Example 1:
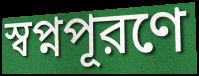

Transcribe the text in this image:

স্বপ্নপূরণে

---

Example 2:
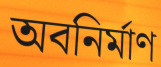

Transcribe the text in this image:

অবনির্মাণ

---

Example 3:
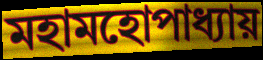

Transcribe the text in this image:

মহামহোপাধ্যায়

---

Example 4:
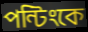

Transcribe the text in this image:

পন্টিংকে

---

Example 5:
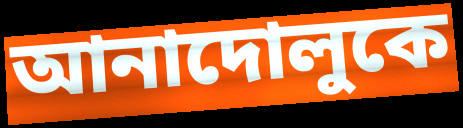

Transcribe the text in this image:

আনাদোলুকে